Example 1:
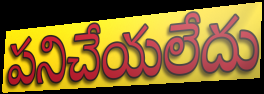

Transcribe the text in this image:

పనిచేయలేదు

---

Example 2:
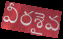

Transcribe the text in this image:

వీరశైవ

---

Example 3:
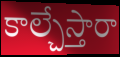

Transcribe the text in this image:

కాల్చేస్తారా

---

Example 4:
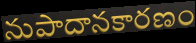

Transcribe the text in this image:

నుపాదానకారణం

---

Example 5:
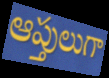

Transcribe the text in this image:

ఆప్తులుగా